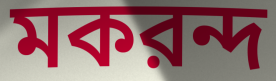
মকরন্দ